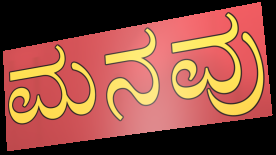
ಮನವು